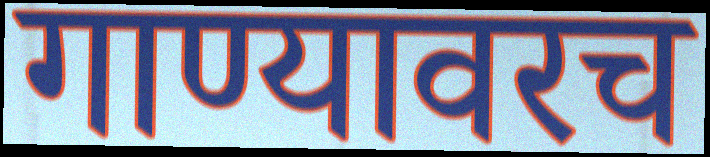
गाण्यावरच